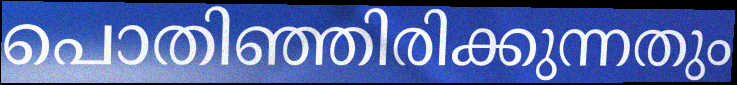
പൊതിഞ്ഞിരിക്കുന്നതും